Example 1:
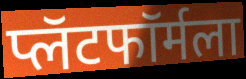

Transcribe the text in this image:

प्लॅटफॉर्मला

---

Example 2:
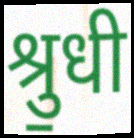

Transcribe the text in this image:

श्रु॒धी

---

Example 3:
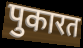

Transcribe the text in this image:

पुकारत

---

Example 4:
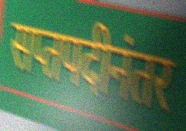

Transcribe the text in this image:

सप्तपदीनंतर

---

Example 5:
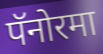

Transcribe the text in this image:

पॅनोरमा